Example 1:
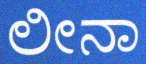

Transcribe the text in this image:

ಲೀನಾ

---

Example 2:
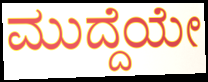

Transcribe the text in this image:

ಮುದ್ದೆಯೇ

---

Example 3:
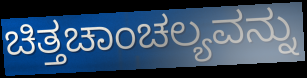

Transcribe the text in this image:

ಚಿತ್ತಚಾಂಚಲ್ಯವನ್ನು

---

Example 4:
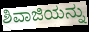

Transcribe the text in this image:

ಶಿವಾಜಿಯನ್ನು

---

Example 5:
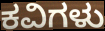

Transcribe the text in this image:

ಕವಿಗಳು